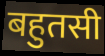
बहुतसी